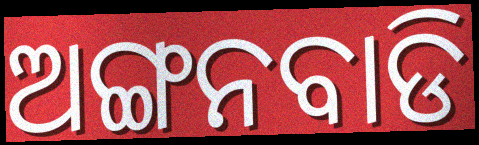
ଅଙ୍ଗନବାଡି